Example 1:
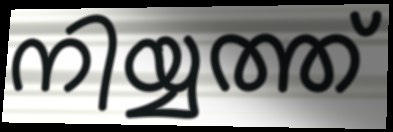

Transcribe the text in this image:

നിയ്യത്ത്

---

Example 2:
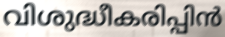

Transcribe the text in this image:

വിശുദ്ധീകരിപ്പിൻ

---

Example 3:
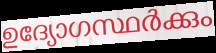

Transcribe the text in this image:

ഉദ്യോഗസ്ഥർക്കും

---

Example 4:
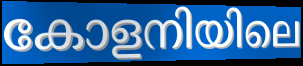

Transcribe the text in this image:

കോളനിയിലെ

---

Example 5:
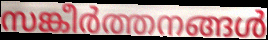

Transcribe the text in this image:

സങ്കീർത്തനങ്ങൾ